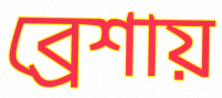
ব্রেশায়